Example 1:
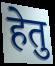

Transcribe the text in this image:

हेतु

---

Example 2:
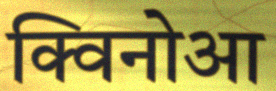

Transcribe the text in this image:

क्विनोआ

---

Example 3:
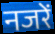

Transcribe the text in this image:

नजरें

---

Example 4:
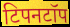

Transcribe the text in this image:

टिपनटॉप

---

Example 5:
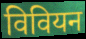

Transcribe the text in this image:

विवियन